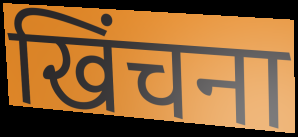
खिंचना